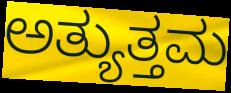
ಅತ್ಯುತ್ತಮ